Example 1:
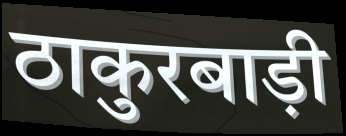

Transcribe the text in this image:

ठाकुरबाड़ी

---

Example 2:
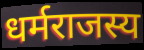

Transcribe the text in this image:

धर्मराजस्य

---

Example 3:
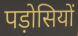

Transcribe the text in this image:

पड़ोसियों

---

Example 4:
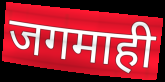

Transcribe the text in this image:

जगमाही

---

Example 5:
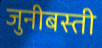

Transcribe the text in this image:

जुनीबस्ती